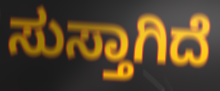
ಸುಸ್ತಾಗಿದೆ